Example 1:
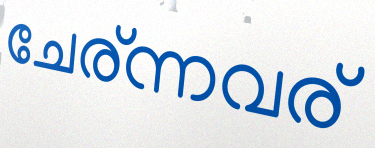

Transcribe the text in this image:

ചേര്ന്നവര്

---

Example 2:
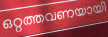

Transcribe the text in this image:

ഒറ്റത്തവണയായി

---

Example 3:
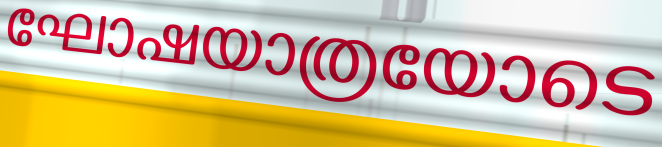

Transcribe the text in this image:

ഘോഷയാത്രയോടെ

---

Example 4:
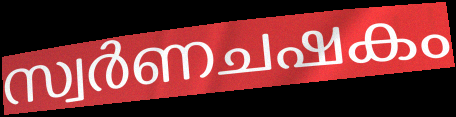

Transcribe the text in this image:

സ്വർണചഷകം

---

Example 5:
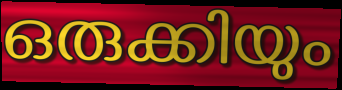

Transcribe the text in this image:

ഒരുക്കിയും